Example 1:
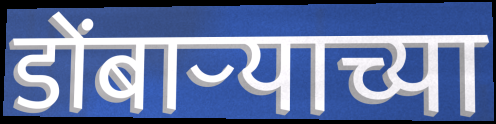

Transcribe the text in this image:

डोंबाऱ्याच्या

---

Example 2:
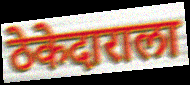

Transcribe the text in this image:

ठेकेदाराला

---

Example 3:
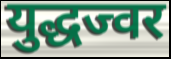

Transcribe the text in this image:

युद्धज्वर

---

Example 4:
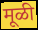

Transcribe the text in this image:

मूळी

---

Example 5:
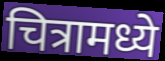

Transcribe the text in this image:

चित्रामध्ये